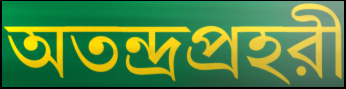
অতন্দ্রপ্রহরী